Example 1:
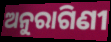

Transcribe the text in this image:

ଅନୁରାଗିଣୀ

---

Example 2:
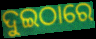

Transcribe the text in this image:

ଦୁଇଠାରେ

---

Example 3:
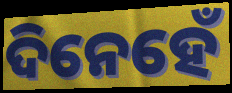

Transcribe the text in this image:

ଦିନେହେଁ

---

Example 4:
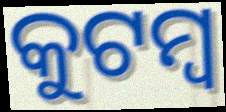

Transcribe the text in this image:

କୁଟମ୍ୱ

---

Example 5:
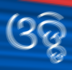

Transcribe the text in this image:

ଓଡ୍ଡି